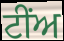
ਟੀਂਅ